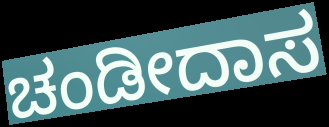
ಚಂಡೀದಾಸ